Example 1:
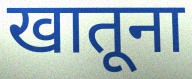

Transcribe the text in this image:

खातूना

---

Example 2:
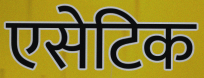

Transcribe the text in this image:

एसेटिक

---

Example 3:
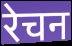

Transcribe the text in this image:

रेचन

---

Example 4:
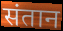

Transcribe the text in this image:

संतान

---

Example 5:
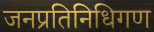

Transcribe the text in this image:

जनप्रतिनिधिगण